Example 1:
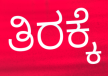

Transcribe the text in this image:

ತಿರಕ್ಕೆ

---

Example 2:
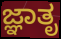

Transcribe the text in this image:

ಜ್ಞಾತೃ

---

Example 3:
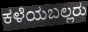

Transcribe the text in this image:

ಕಳೆಯಬಲ್ಲರು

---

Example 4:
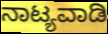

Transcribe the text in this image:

ನಾಟ್ಯವಾಡಿ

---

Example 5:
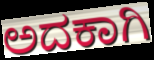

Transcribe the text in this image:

ಅದಕಾಗಿ